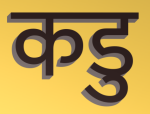
कडु